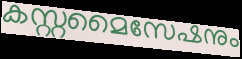
കസ്റ്റമൈസേഷനും